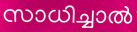
സാധിച്ചാൽ